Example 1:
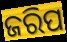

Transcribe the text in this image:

ଜରିପ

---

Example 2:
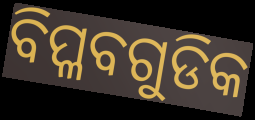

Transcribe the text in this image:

ବିପ୍ଳବଗୁଡିକ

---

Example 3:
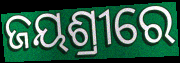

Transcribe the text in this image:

ଜୟଶ୍ରୀରେ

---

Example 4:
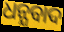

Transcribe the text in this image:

ଧନ୍ଯବାଦ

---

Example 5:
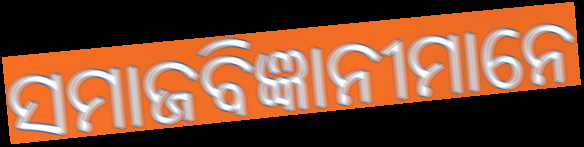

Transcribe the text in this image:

ସମାଜବିଜ୍ଞାନୀମାନେ